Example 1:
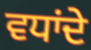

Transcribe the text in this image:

ਵਧਾਂਦੇ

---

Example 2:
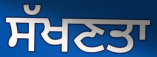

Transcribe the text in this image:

ਸੱਖਣਤਾ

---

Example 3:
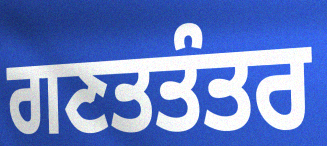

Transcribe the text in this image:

ਗਣਤਤੰਤਰ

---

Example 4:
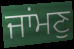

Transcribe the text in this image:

ਜਾਂਮਣੁ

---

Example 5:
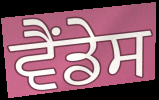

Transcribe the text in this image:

ਵੈਂਡੇਸ